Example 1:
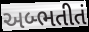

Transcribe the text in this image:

અબ્ભતીતં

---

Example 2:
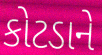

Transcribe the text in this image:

કોટડાને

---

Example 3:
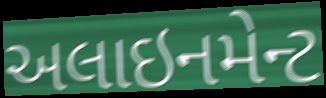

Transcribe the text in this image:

અલાઇનમેન્ટ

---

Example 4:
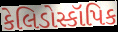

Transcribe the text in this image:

કેલિડોસ્કૉપિક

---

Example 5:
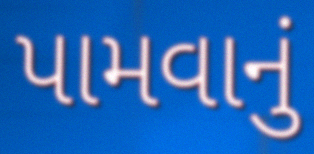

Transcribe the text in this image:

પામવાનું